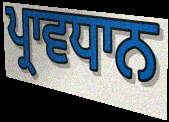
ਪ੍ਰਾਵਧਾਨ